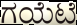
ಗಯೆಟೆ